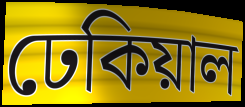
ঢেকিয়াল